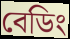
বেডিং